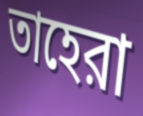
তাহেরা